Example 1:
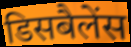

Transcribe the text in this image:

डिसबैलेंस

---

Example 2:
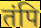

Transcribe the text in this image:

तंपि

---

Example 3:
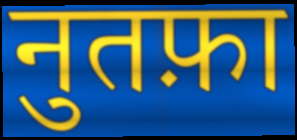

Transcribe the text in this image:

नुतफ़ा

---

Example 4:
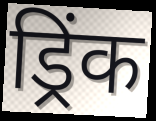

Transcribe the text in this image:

ड्रिंक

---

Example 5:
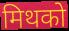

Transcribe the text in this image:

मिथको